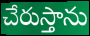
చేరుస్తాను